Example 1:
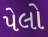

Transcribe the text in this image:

પેલો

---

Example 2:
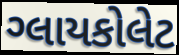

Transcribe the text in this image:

ગ્લાયકોલેટ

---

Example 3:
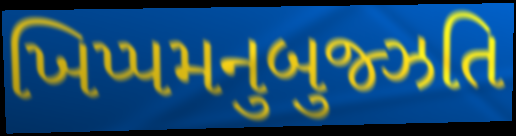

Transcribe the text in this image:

ખિપ્પમનુબુજ્ઝતિ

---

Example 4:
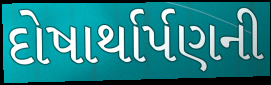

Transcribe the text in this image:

દોષાર્થાર્પણની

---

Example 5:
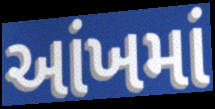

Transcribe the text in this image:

આંખમાં